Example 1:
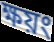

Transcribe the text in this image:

ক্ষয়ং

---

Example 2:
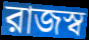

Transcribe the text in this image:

রাজস্ব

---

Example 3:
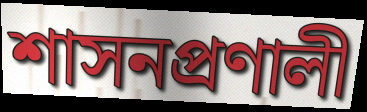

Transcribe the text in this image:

শাসনপ্রণালী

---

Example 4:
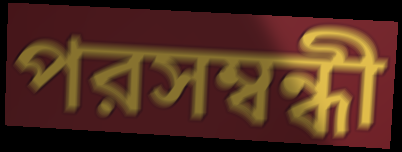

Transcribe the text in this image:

পরসম্বন্ধী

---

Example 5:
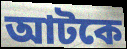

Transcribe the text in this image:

আটকে